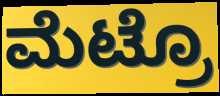
ಮೆಟ್ರೊ